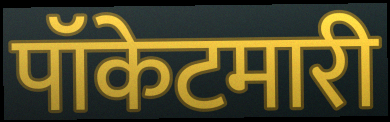
पॉकेटमारी